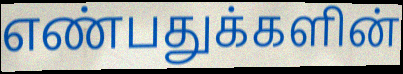
எண்பதுக்களின்